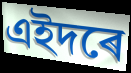
এইদৰে